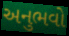
અનુભવો